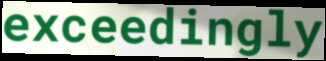
exceedingly